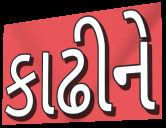
કાઢીને